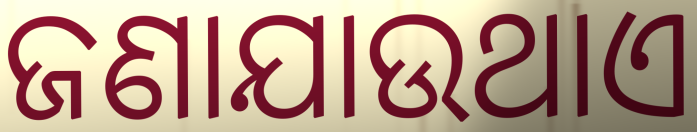
ଜଣାଯାଉଥାଏ